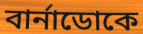
বার্নাডোকে